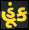
હૂંક